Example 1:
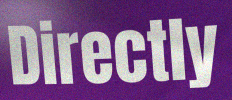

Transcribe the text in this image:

Directly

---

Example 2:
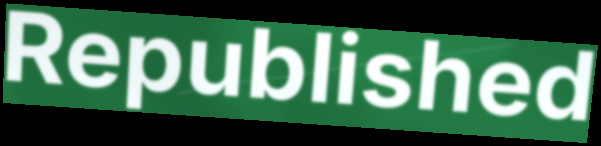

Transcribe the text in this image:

Republished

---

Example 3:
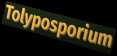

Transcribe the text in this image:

Tolyposporium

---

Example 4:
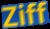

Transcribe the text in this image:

Ziff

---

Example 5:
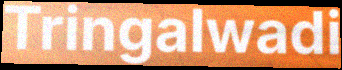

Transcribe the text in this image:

Tringalwadi